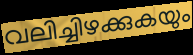
വലിച്ചിഴക്കുകയും